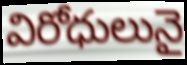
విరోధులునై